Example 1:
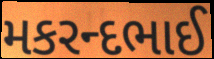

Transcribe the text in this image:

મકરન્દભાઈ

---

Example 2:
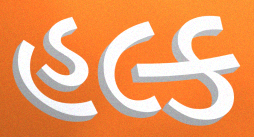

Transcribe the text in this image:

હલ્ક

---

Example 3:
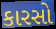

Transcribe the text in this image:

કારસો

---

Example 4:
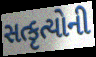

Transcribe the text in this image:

સત્કૃત્યોની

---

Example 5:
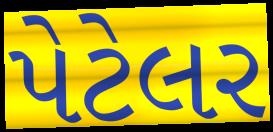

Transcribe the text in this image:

પેટેલર